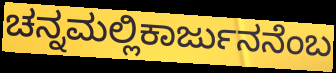
ಚನ್ನಮಲ್ಲಿಕಾರ್ಜುನನೆಂಬ